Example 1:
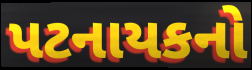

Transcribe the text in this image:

પટનાયકનો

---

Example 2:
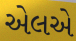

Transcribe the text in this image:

એલએ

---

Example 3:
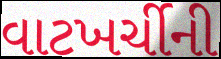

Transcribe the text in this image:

વાટખર્ચીની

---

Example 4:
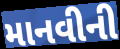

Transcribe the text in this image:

માનવીની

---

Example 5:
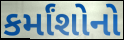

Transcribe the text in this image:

કર્માંશોનો